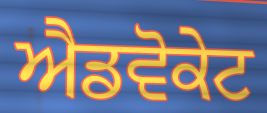
ਐਡਵੋਕੇਟ